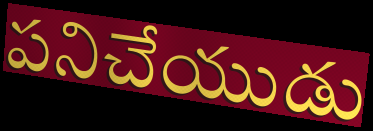
పనిచేయుడు